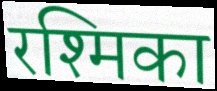
रश्मिका